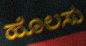
ಹೊಲಸು